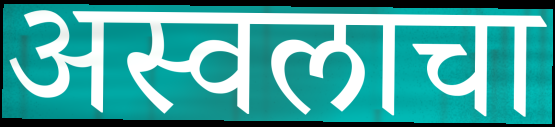
अस्वलाचा